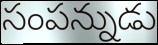
సంపన్నుడు